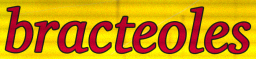
bracteoles